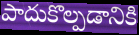
పాదుకొల్పడానికి